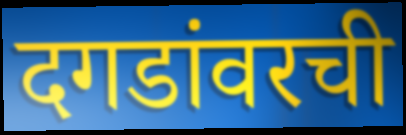
दगडांवरची